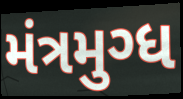
મંત્રમુગ્ધ